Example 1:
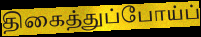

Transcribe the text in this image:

திகைத்துப்போய்ப்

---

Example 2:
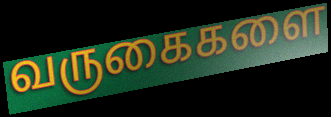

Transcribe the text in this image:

வருகைகளை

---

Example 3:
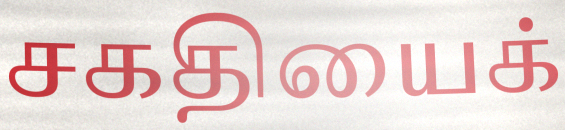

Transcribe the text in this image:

சகதியைக்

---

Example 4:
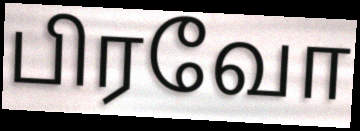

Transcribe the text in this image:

பிரவோ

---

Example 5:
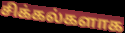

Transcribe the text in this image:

சிக்கல்களாக